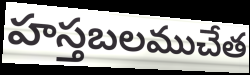
హస్తబలముచేత